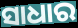
ସାଧାର